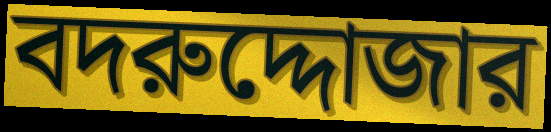
বদরুদ্দোজার